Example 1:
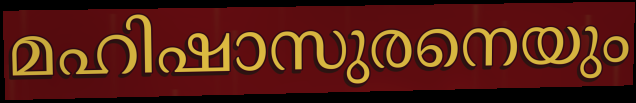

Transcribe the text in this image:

മഹിഷാസുരനെയും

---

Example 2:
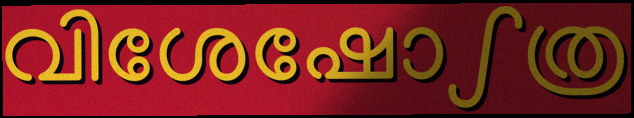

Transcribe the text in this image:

വിശേഷോഽത്ര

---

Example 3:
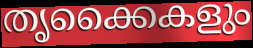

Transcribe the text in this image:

തൃക്കൈകളും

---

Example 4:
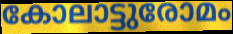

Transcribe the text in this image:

കോലാട്ടുരോമം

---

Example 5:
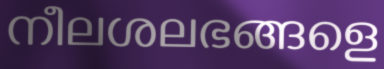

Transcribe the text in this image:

നീലശലഭങ്ങളെ